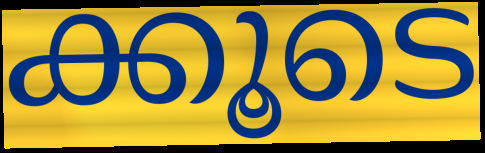
ക്കൂടെ